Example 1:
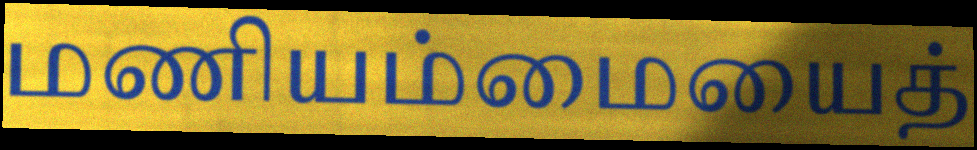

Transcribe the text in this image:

மணியம்மையைத்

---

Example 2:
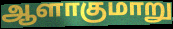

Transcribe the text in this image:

ஆளாகுமாறு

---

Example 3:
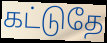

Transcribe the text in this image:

கட்டுதே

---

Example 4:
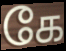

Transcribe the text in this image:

கே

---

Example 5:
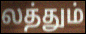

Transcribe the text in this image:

லத்தும்